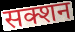
सक्शन